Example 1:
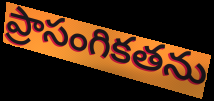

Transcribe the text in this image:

ప్రాసంగికతను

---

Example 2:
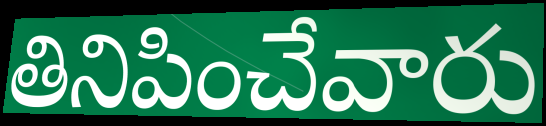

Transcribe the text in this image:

తినిపించేవారు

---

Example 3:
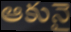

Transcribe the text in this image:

ఆకునై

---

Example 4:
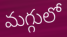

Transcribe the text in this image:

మగ్గులో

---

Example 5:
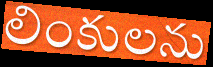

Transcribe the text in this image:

లింకులను